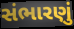
સંભારણું